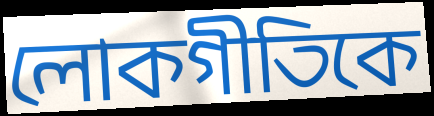
লোকগীতিকে